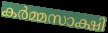
കർമ്മസാക്ഷി